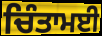
ਚਿੰਤਾਮਈ